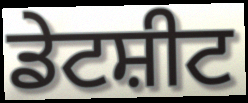
ਡੇਟਸ਼ੀਟ